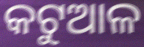
କଟୁଆଳ